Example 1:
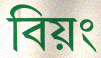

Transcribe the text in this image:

বিয়ং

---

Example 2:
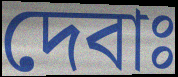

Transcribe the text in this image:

দেবাঃ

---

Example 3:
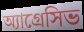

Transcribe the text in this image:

অ্যাগ্রেসিভ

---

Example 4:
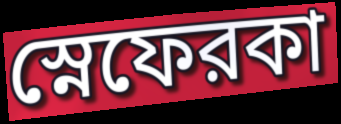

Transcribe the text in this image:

স্নেফেরকা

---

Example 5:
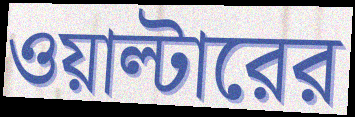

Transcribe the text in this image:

ওয়াল্টারের